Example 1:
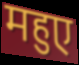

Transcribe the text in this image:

महुए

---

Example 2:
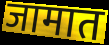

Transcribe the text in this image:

जामात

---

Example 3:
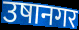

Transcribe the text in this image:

उषानगर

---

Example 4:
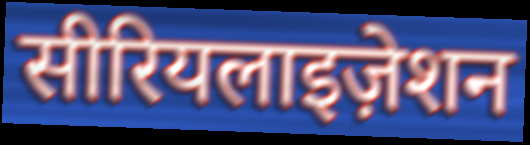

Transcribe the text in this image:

सीरियलाइज़ेशन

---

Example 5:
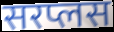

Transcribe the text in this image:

सरप्लस